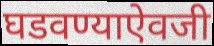
घडवण्याऐवजी